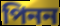
পিনন